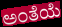
ಅಂತೆಯೆ